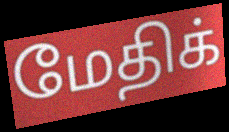
மேதிக்